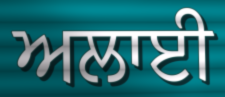
ਅਲਾਈ